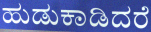
ಹುಡುಕಾಡಿದರೆ